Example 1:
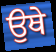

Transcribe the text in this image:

ਉਥੇ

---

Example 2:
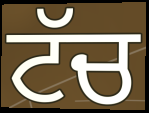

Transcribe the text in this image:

ਟੱਚ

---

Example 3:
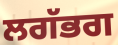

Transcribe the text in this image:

ਲਗੱਭਗ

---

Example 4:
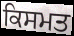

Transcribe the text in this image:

ਕਿਸਮਤ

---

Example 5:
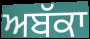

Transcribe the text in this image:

ਅਬੱਕਾ